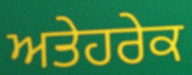
ਅਤੇਹਰੇਕ